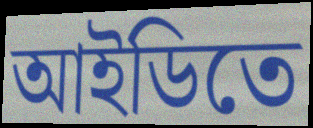
আইডিতে